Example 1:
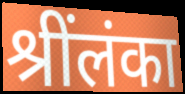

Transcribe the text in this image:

श्रींलंका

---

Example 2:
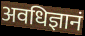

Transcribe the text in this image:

अवधिज्ञानं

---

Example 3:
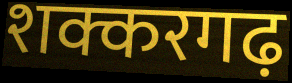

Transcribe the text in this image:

शक्करगढ़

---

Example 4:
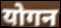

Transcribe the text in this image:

योगन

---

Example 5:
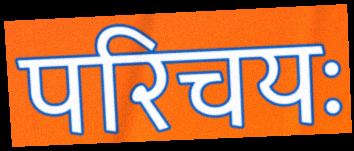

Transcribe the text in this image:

परिचयः